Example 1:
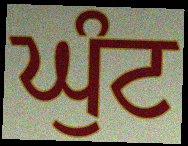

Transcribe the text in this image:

ਘੁੰਟ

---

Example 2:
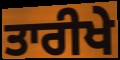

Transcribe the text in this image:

ਤਾਰੀਖੇ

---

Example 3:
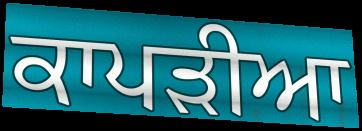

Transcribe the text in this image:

ਕਾਪੜੀਆ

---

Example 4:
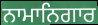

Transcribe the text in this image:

ਨਾਮਾਨਿਗਾਰ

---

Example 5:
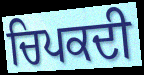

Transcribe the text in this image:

ਚਿਪਕਦੀ